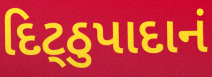
દિટ્ઠુપાદાનં